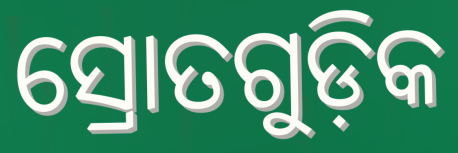
ସ୍ରୋତଗୁଡ଼ିକ